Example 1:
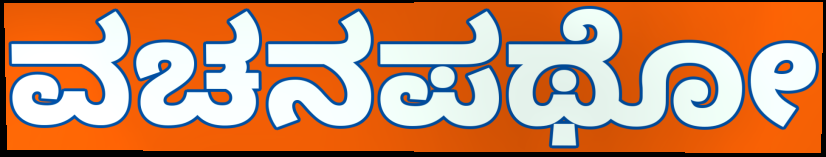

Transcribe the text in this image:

ವಚನಪಥೋ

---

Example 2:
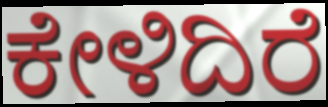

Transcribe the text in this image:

ಕೇಳಿದಿರೆ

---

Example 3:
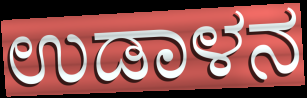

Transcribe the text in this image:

ಉಡಾಳನ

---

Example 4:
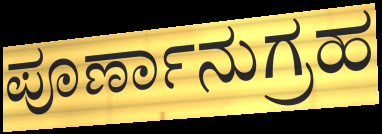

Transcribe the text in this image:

ಪೂರ್ಣಾನುಗ್ರಹ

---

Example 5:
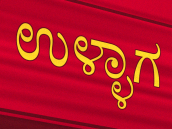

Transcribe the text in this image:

ಉಳ್ಳಾಗ